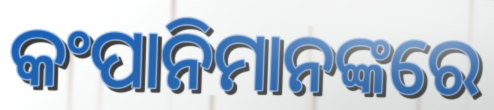
କଂପାନିମାନଙ୍କରେ